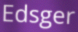
Edsger